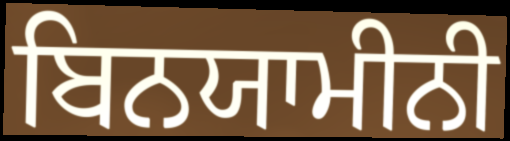
ਬਿਨਯਾਮੀਨੀ